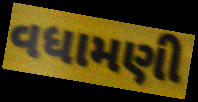
વધામણી